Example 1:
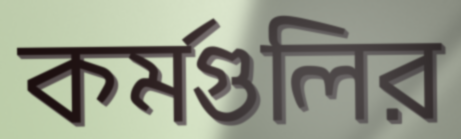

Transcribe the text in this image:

কর্মগুলির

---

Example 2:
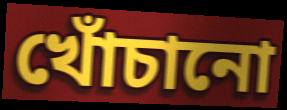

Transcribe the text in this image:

খোঁচানো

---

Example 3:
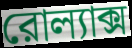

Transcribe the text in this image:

রোল্যাক্স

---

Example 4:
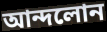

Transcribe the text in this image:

আন্দলোন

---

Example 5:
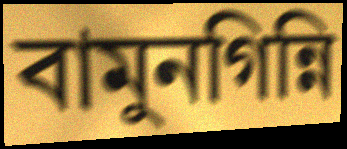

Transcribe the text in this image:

বামুনগিন্নি